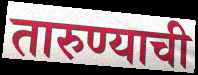
तारुण्याची